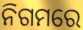
ନିଗମରେ